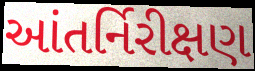
આંતર્નિરીક્ષણ